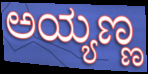
ಅಯ್ಯಣ್ಣ